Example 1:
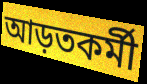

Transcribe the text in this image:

আড়তকর্মী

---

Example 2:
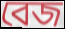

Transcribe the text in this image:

বেজ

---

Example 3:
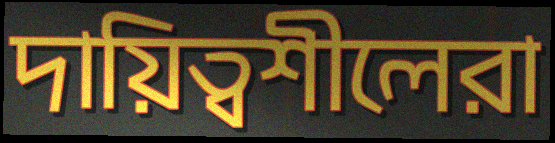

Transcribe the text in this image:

দায়িত্বশীলেরা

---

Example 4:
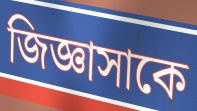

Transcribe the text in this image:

জিজ্ঞাসাকে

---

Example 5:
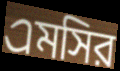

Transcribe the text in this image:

এমসির